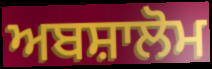
ਅਬਸ਼ਾਲੋਮ